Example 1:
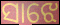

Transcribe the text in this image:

ସାଝେ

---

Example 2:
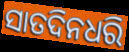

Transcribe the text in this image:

ସାତଦିନଧରି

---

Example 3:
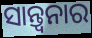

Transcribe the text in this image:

ସାନ୍ତ୍ୱନାର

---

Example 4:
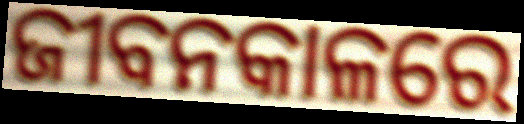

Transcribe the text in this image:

ଜୀବନକାଳରେ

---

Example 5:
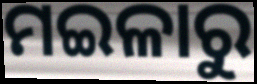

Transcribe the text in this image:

ମଇଳାରୁ